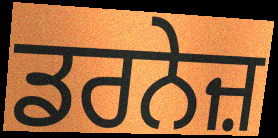
ਡਰਨੇਜ਼